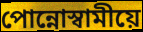
পোন্নোস্বামীয়ে